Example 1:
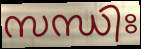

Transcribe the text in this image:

സന്ധിഃ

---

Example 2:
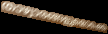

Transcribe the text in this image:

താഴ്വാരങ്ങളുമൊക്കെ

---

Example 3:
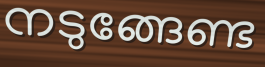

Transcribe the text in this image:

നടുങ്ങേണ്ട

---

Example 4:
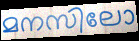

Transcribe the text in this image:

മനസിലോ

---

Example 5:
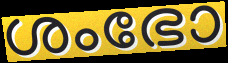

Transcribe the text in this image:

ശംഭോ